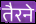
तैरने